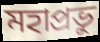
মহাপ্রভু